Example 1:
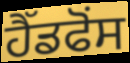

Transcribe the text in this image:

ਹੈੱਡਫੋਂਸ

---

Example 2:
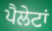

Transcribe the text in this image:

ਪੈਲੇਟਾਂ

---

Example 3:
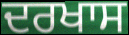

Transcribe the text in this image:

ਦਰਖਾਸ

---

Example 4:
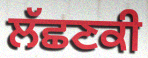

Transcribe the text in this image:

ਲੱਛਣਕੀ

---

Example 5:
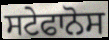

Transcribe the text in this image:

ਸਟੇਫਾਨੋਸ